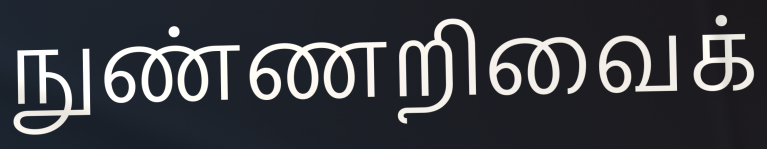
நுண்ணறிவைக்